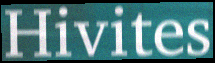
Hivites